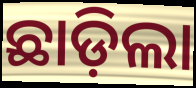
ଛାଡ଼ିଲା